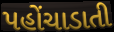
પહોંચાડાતી